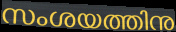
സംശയത്തിനു